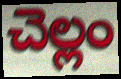
చెల్లం